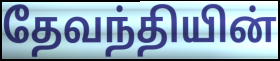
தேவந்தியின்